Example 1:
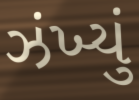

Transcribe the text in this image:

ઝંખ્યું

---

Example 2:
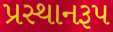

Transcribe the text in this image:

પ્રસ્થાનરૂપ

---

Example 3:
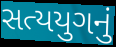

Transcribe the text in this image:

સત્યયુગનું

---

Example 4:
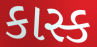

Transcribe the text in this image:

કાસ્ક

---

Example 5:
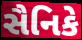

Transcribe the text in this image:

સૈનિકે